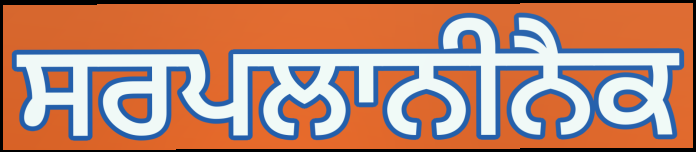
ਸਰਪਲਾਨੀਨੈਕ